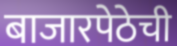
बाजारपेठेची